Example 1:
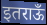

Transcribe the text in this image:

इतराऊँ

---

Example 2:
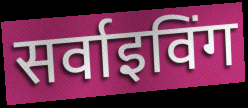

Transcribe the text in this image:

सर्वाइविंग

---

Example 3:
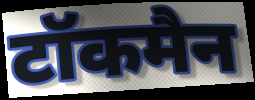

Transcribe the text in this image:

टॉकमैन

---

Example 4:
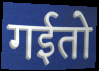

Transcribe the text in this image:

गईतो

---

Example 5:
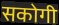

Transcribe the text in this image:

सकोगी